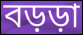
বড়ড়া